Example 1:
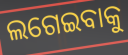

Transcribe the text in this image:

ଲଗେଇବାକୁ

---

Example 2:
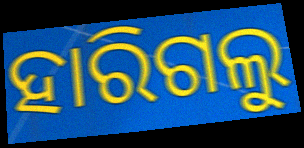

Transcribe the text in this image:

ହାରିଗଲୁ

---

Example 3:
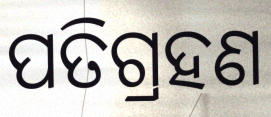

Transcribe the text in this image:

ପତିଗ୍ରହଣ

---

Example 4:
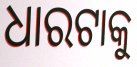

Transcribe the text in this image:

ଧାରଟାକୁ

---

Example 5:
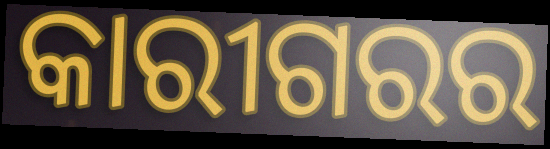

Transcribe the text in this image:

କାରୀଗରର